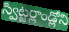
స్విట్జర్లాండ్లోని